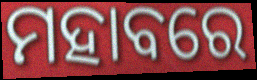
ମହାବରେ